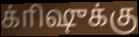
க்ரிஷுக்கு